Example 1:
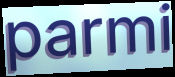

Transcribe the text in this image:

parmi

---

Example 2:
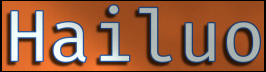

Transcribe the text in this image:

Hailuo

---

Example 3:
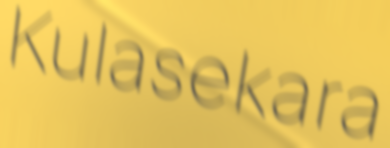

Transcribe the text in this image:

Kulasekara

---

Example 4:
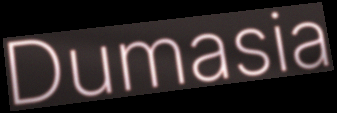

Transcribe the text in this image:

Dumasia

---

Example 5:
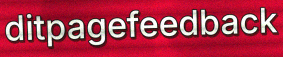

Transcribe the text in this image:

ditpagefeedback